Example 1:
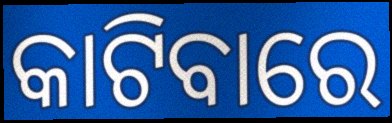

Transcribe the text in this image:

କାଟିବାରେ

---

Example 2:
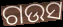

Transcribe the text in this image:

ଗଉସ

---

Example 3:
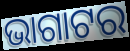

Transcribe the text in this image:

ଭାଗାଟର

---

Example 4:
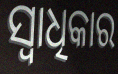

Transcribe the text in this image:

ସ୍ବାଧିକାର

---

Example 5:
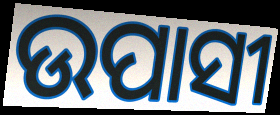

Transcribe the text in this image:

ଉପାସୀ